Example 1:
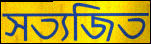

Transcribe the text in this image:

সত্যজিত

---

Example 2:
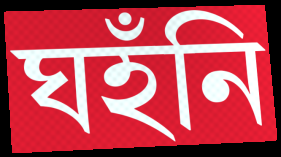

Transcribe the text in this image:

ঘহঁনি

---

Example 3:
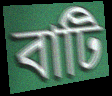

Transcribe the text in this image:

বাটি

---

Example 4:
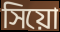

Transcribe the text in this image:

সিয়ো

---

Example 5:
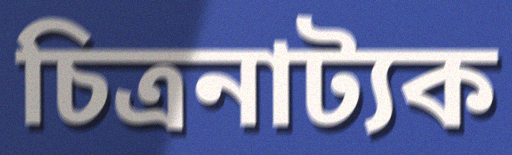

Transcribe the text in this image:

চিত্ৰনাট্যক